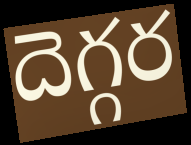
దెగ్గర